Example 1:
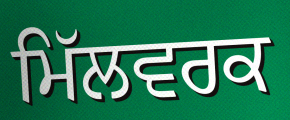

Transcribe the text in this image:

ਮਿੱਲਵਰਕ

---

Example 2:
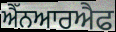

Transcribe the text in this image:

ਐੱਨਆਰਐਫ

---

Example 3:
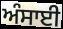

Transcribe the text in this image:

ਅੰਸਾਈ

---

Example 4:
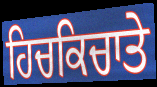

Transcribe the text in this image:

ਹਿਚਕਿਚਾਤੇ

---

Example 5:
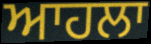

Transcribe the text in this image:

ਆਹਲਾ